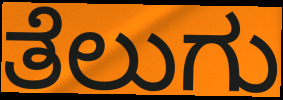
ತೆಲುಗು